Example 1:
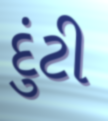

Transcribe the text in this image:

દુંટી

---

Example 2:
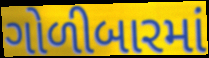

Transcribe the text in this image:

ગોળીબારમાં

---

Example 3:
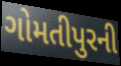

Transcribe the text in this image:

ગોમતીપુરની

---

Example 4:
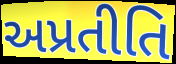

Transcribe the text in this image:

અપ્રતીતિ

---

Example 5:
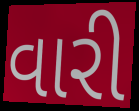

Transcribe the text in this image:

વારી